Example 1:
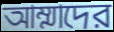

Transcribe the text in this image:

আম্মাদের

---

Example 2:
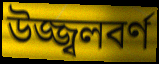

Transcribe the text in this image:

উজ্জ্বলবর্ণ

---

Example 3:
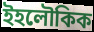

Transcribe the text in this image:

ইহলৌকিক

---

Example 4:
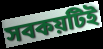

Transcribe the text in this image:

সবকয়টিই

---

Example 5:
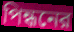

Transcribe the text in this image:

পিন্ধনের